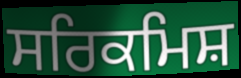
ਸਰਿਕਮਿਸ਼